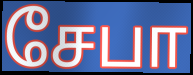
சேபா